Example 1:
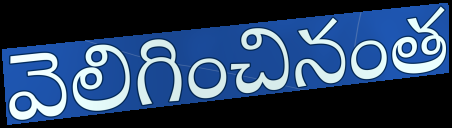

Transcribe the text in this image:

వెలిగించినంత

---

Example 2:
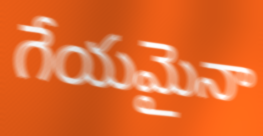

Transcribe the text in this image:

గేయమైనా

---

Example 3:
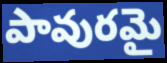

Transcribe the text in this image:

పావురమై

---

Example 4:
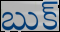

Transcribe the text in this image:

బుక్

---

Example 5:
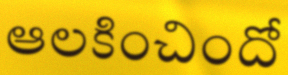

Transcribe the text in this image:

ఆలకించిందో